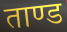
ताण्ड